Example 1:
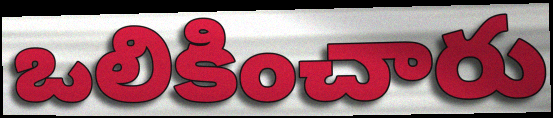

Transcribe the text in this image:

ఒలికించారు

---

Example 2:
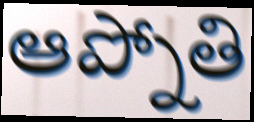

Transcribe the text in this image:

ఆప్నోతి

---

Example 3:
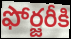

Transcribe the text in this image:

ఫోర్జరీకి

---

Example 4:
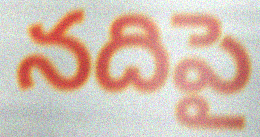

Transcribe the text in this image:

నదిపై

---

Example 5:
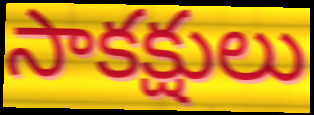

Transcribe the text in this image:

సాకక్షులు